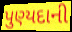
પુણ્યદાની